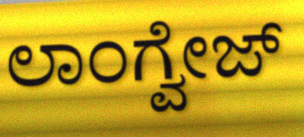
ಲಾಂಗ್ವೇಜ್